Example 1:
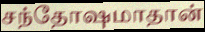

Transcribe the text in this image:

சந்தோஷமாதான்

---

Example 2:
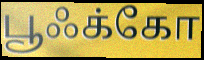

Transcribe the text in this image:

பூஃக்கோ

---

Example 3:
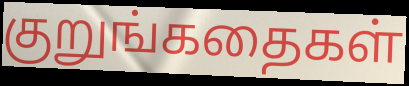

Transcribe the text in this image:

குறுங்கதைகள்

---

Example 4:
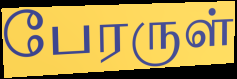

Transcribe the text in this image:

பேரருள்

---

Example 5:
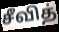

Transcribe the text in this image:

சீவித்